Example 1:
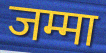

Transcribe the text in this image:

जम्मा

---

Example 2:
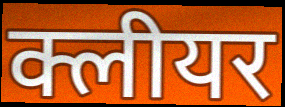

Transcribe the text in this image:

क्लीयर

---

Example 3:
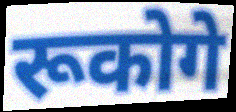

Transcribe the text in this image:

रूकोगे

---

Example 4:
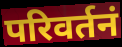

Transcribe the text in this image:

परिवर्तनं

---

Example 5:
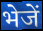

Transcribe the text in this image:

भेजें